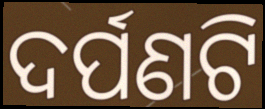
ଦର୍ପଣଟି